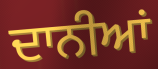
ਦਾਨੀਆਂ